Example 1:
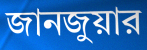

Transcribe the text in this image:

জানজুয়ার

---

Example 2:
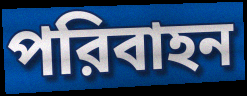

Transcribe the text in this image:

পরিবাহন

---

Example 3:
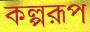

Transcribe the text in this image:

কল্পরূপ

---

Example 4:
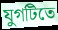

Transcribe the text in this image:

যুগটিতে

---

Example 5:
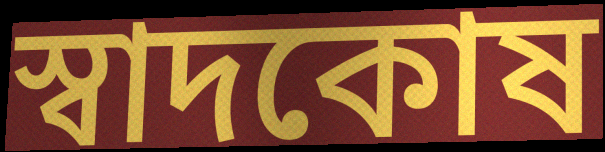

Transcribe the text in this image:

স্বাদকোষ